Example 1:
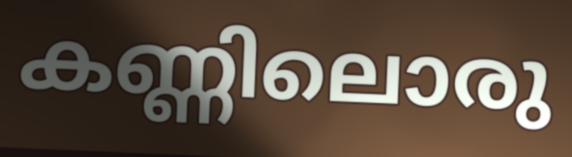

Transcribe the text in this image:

കണ്ണിലൊരു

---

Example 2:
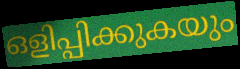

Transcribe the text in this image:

ഒളിപ്പിക്കുകയും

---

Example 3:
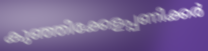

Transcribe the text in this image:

കുഞ്ഞിക്കേളപ്പണിക്കർ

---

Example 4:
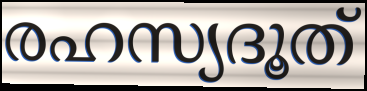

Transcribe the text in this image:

രഹസ്യദൂത്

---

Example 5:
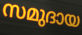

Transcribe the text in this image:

സമുദായ